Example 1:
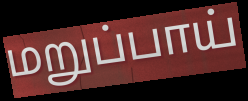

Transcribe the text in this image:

மறுப்பாய்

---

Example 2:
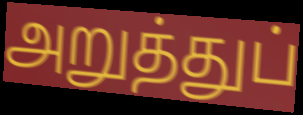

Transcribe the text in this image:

அறுத்துப்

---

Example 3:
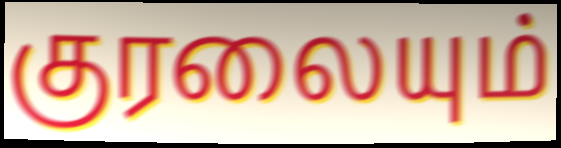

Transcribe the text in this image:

குரலையும்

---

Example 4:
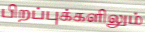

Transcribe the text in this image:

பிறப்புக்களிலும்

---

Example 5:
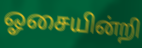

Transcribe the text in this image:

ஓசையின்றி